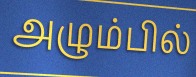
அழும்பில்